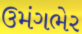
ઉમંગભેર